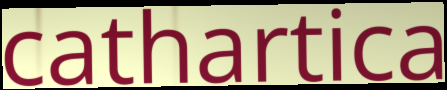
cathartica